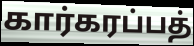
கார்கரப்பத்